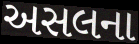
અસલના